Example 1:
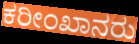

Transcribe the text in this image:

ಕರೀಂಖಾನರು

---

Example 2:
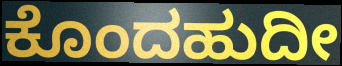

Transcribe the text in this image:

ಕೊಂದಹುದೀ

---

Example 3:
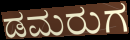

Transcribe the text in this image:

ಡಮರುಗ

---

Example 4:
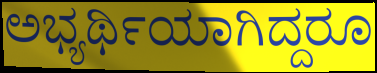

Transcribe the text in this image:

ಅಭ್ಯರ್ಥಿಯಾಗಿದ್ದರೂ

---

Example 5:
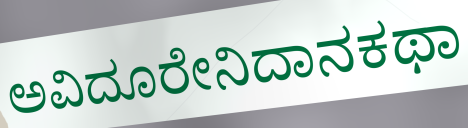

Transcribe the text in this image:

ಅವಿದೂರೇನಿದಾನಕಥಾ